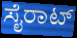
ಸೈರಾಟ್